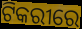
ଟିକରୀରେ